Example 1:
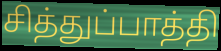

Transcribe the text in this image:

சித்துப்பாத்தி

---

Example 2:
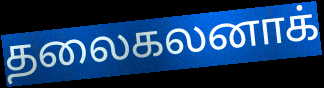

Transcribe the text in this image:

தலைகலனாக்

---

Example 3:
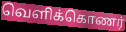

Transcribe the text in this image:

வெளிக்கொணர்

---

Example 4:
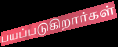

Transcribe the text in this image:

பயப்படுகிறார்கள்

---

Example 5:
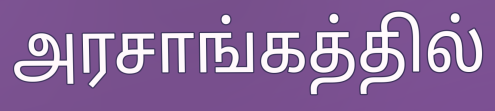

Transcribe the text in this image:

அரசாங்கத்தில்